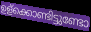
ഉള്ക്കൊണ്ടിട്ടുണ്ടോ